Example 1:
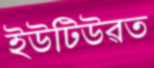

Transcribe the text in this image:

ইউটিউৱত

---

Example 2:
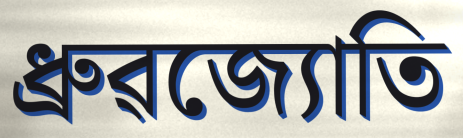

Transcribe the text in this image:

ধ্ৰুৱজ্যোতি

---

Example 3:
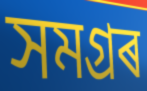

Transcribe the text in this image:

সমগ্ৰৰ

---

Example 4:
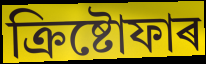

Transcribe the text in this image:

ক্ৰিষ্টোফাৰ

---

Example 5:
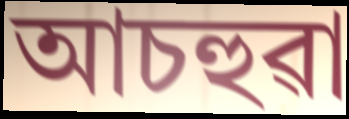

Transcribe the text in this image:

আচহুৱা